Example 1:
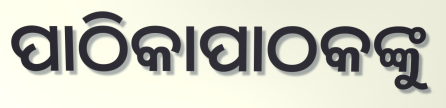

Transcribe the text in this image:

ପାଠିକାପାଠକଙ୍କୁ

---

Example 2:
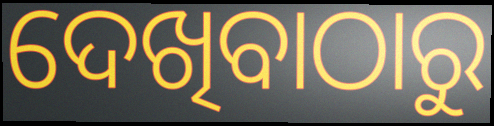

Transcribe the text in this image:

ଦେଖିବାଠାରୁ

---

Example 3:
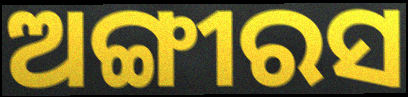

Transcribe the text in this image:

ଅଙ୍ଗୀରସ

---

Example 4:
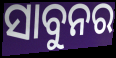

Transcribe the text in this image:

ସାବୁନର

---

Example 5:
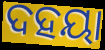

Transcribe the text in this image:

ଦହୟା